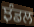
ਝੰਡਲ